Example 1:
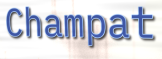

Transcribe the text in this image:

Champat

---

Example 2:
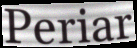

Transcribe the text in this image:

Periar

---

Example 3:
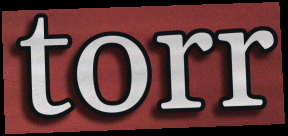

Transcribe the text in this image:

torr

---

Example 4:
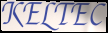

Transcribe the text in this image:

KELTEC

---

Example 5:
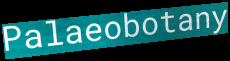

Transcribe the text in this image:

Palaeobotany